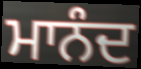
ਮਾਨੰਦ